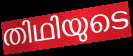
തിഥിയുടെ